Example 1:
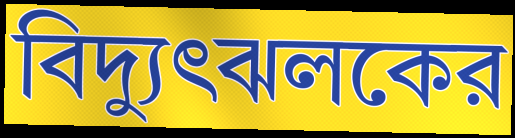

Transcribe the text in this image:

বিদ্যুৎঝলকের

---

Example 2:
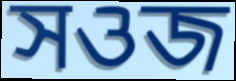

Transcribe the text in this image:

সওজ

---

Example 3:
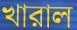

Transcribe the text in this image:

খারাল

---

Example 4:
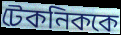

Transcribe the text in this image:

টেকনিককে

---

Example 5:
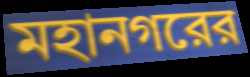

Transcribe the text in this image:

মহানগরের